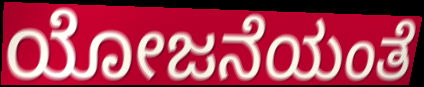
ಯೋಜನೆಯಂತೆ